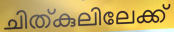
ചിത്കുലിലേക്ക്